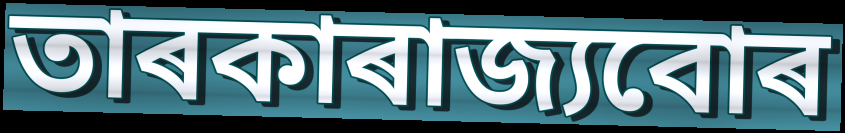
তাৰকাৰাজ্যবোৰ